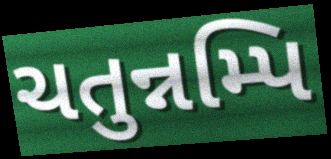
ચતુન્નમ્પિ